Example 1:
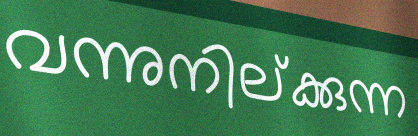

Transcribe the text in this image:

വന്നുനില്ക്കുന്ന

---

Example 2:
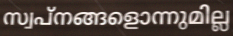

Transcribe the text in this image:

സ്വപ്നങ്ങളൊന്നുമില്ല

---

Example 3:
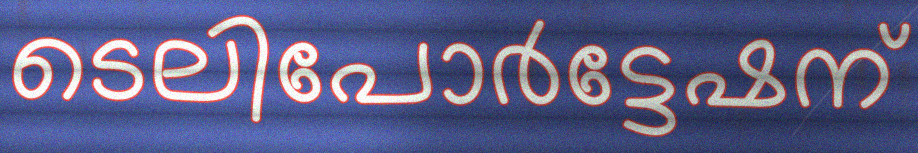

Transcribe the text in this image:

ടെലിപോർട്ടേഷന്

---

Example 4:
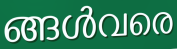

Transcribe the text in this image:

ങ്ങൾവരെ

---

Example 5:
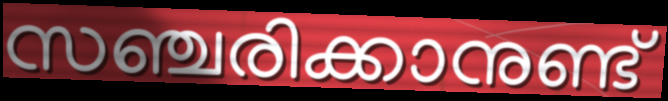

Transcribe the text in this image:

സഞ്ചരിക്കാനുണ്ട്